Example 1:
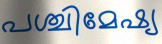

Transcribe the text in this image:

പശ്ചിമേഷ്യ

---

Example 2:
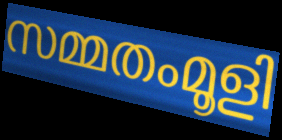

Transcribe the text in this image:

സമ്മതംമൂളി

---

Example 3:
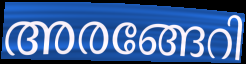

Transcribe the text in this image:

അരങ്ങേറി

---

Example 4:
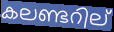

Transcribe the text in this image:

കലണ്ടറില്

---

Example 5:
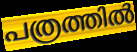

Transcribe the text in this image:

പത്രത്തിൽ